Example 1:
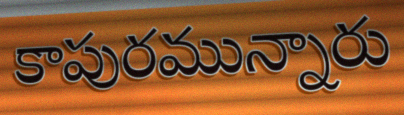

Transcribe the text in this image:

కాపురమున్నారు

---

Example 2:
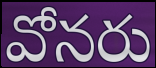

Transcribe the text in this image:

వోనరు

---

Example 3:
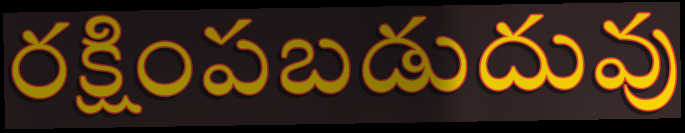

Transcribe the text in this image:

రక్షింపబడుదువు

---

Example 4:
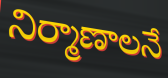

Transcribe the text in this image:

నిర్మాణాలనే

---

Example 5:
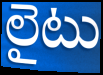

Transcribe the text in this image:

లైటు